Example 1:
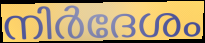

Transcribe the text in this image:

നിർദേശം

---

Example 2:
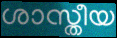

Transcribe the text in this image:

ശാസ്തീയ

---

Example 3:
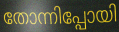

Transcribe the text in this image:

തോന്നിപ്പോയി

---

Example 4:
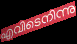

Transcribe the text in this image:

എവിടെനിന്നു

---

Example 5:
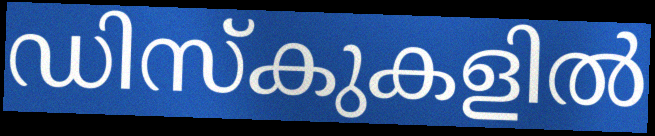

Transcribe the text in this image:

ഡിസ്കുകളിൽ